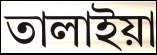
তালাইয়া